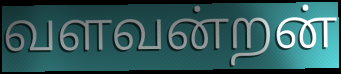
வளவன்றன்